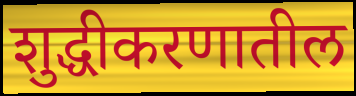
शुद्धीकरणातील